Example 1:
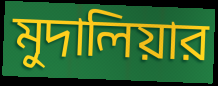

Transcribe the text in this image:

মুদালিয়ার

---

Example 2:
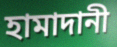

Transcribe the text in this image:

হামাদানী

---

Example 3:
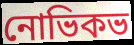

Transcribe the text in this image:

নোভিকভ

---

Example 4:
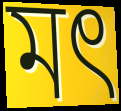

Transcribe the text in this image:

মৎ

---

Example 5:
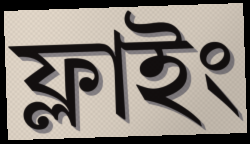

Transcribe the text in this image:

ফ্লাইং